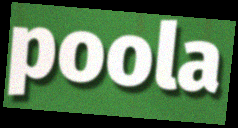
poola